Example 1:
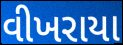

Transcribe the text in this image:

વીખરાયા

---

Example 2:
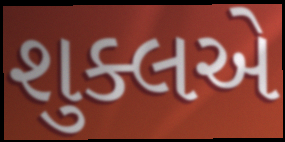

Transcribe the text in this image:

શુક્લએ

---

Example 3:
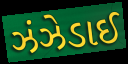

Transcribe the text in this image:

ઝંઝેડાઈ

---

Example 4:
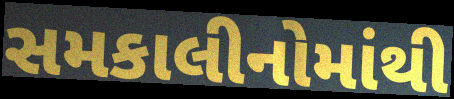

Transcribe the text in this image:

સમકાલીનોમાંથી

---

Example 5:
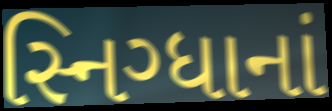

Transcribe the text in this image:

સ્નિગ્ધાનાં